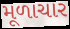
મૂળાચાર